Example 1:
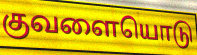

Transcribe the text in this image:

குவளையொடு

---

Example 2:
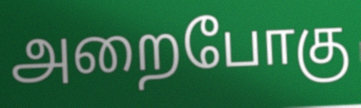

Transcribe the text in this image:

அறைபோகு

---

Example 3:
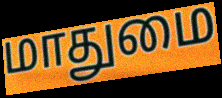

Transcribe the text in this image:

மாதுமை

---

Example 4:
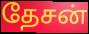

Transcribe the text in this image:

தேசன்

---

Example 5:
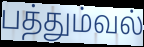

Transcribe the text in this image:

பத்தும்வல்